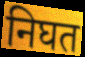
निघत